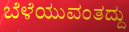
ಬೆಳೆಯುವಂತದ್ದು